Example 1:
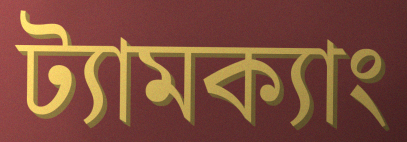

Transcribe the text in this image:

ট্যামক্যাং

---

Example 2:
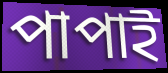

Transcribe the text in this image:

পাপাই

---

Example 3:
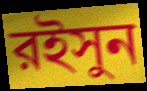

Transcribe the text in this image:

রইসুন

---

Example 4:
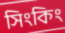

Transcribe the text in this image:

সিংকিং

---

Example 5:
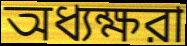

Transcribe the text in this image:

অধ্যক্ষরা